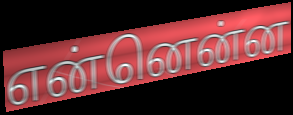
என்னென்ன